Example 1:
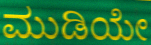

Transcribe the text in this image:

ಮುಡಿಯೇ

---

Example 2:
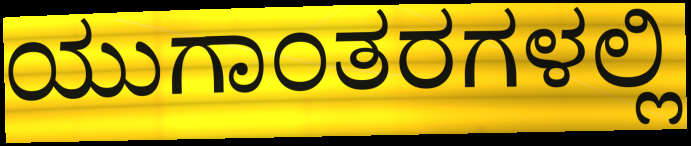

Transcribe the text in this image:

ಯುಗಾಂತರಗಳಲ್ಲಿ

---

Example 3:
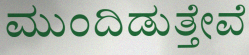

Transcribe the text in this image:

ಮುಂದಿಡುತ್ತೇವೆ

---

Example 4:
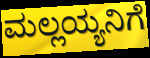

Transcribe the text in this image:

ಮಲ್ಲಯ್ಯನಿಗೆ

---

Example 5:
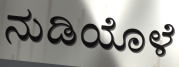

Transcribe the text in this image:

ನುಡಿಯೊಳೆ